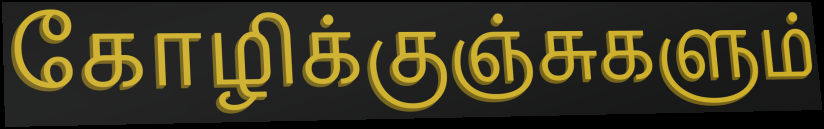
கோழிக்குஞ்சுகளும்